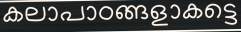
കലാപാഠങ്ങളാകട്ടെ